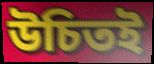
উচিতই